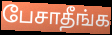
பேசாதீங்க